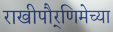
राखीपौर्णिमेच्या